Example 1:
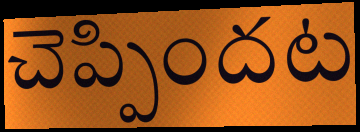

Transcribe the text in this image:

చెప్పిందట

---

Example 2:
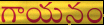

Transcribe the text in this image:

గాయనం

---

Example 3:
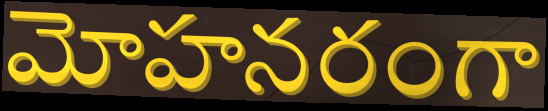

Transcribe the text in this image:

మోహనరంగా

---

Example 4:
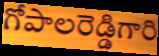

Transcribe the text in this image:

గోపాలరెడ్డిగారి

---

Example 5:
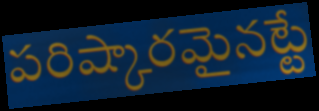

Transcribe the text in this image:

పరిష్కారమైనట్టే